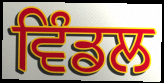
ਵਿੰਡਲ